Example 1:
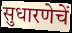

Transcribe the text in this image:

सुधारणेचें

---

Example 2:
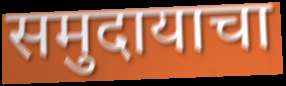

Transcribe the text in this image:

समुदायाचा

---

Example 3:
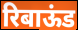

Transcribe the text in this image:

रिबाऊंड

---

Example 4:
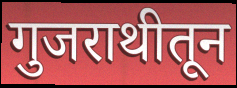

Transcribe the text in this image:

गुजराथीतून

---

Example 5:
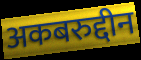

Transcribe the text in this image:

अकबरुद्दीन